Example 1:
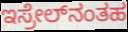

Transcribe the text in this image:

ಇಸ್ರೇಲ್‌ನಂತಹ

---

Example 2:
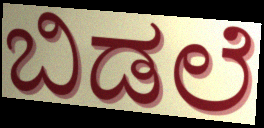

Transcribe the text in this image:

ಬಿಡಲೆ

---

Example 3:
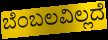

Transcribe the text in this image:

ಬೆಂಬಲವಿಲ್ಲದೆ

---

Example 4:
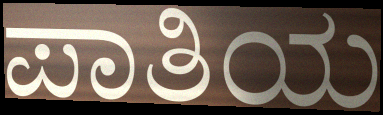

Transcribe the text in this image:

ಪಾತಿಯ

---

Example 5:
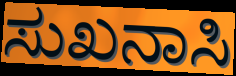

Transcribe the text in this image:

ಸುಖನಾಸಿ